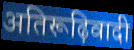
अतिरूढ़िवादी